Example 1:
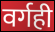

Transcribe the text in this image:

वर्गही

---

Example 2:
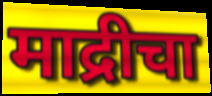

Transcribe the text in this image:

माद्रीचा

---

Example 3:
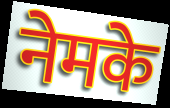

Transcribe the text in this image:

नेमके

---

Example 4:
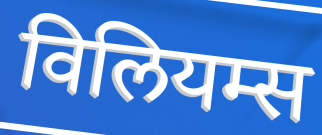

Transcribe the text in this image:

विलियम्स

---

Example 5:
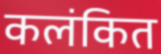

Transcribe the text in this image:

कलंकित